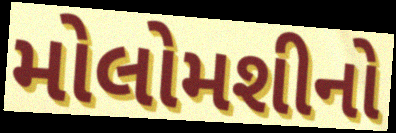
મોલોમશીનો